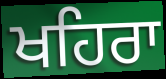
ਖਹਿਰਾ